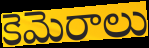
కెమెరాలు